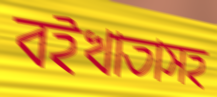
বইখাতাসহ